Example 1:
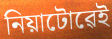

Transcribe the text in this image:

নিয়াটোৱেই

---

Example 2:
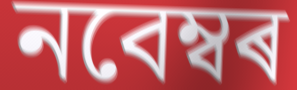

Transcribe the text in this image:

নবেম্বৰ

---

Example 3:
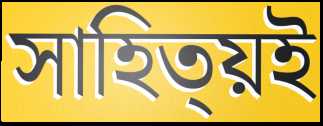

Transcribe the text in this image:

সাহিত্য়ই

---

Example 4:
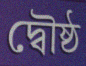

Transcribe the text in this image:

দ্বৌষ্ঠ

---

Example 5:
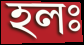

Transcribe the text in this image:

হলঃ